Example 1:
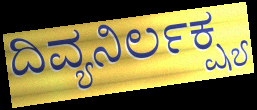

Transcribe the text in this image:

ದಿವ್ಯನಿರ್ಲಕ್ಷ್ಯ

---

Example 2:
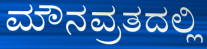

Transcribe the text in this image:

ಮೌನವ್ರತದಲ್ಲಿ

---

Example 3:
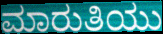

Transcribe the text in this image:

ಮಾರುತಿಯು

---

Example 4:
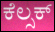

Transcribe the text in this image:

ಕೆಲ್ಸಕ್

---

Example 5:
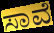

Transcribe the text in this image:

ಸಾವೆ